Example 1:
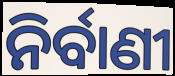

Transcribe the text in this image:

ନିର୍ବାଣୀ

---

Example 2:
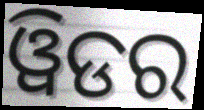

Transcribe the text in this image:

ୱିଡର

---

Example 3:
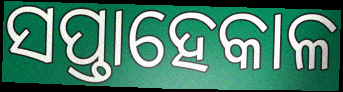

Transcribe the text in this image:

ସପ୍ତାହେକାଳ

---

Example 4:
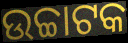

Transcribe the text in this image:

ଉଚ୍ଚାଟକ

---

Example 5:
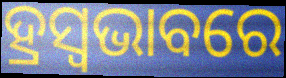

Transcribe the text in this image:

ହ୍ରସ୍ୱଭାବରେ